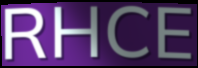
RHCE